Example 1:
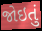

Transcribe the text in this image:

જોઇતું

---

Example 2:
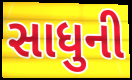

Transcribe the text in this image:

સાધુની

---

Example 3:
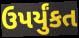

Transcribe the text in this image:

ઉપર્યુંકત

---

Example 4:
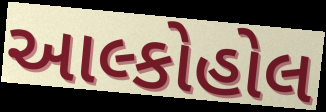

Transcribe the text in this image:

આલ્કોહોલ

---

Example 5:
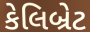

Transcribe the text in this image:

કેલિબ્રેટ